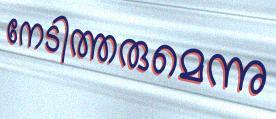
നേടിത്തരുമെന്നു